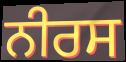
ਨੀਰਸ